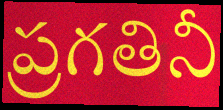
ప్రగతినీ